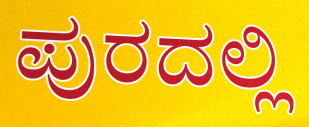
ಪುರದಲ್ಲಿ